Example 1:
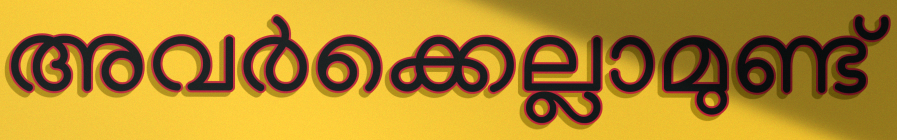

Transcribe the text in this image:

അവർക്കെല്ലാമുണ്ട്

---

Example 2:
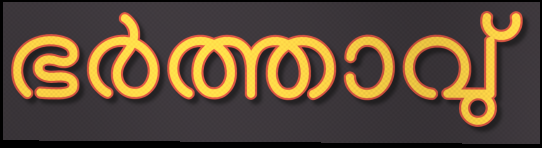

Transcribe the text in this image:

ഭർത്താവു്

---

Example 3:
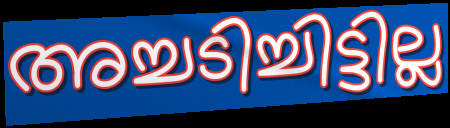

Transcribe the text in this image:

അച്ചടിച്ചിട്ടില്ല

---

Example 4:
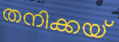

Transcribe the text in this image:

തനിക്കയ്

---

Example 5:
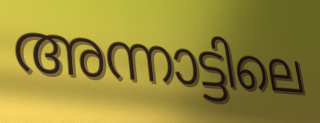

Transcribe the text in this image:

അന്നാട്ടിലെ